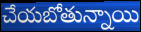
చేయబోతున్నాయి